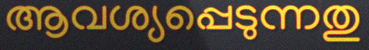
ആവശ്യപ്പെടുന്നതു